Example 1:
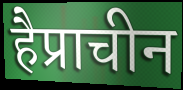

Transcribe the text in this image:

हैप्राचीन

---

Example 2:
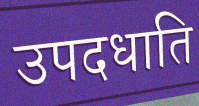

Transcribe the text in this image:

उपदधाति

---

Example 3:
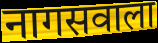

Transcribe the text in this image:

नागसवाला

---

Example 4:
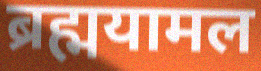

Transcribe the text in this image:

ब्रह्मयामल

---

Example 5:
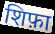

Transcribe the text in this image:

शिफ़ा